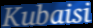
Kubaisi